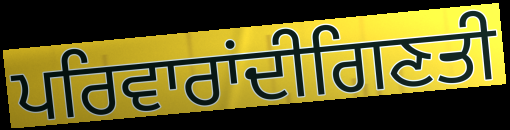
ਪਰਿਵਾਰਾਂਦੀਗਿਣਤੀ